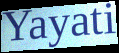
Yayati